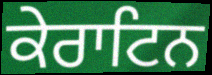
ਕੇਰਾਟਿਨ